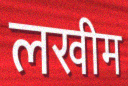
लखीम